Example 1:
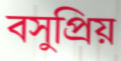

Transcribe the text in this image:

বসুপ্রিয়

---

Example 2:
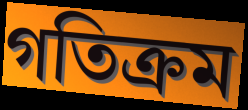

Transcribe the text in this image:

গতিক্রম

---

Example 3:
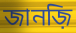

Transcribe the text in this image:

জানজ়ি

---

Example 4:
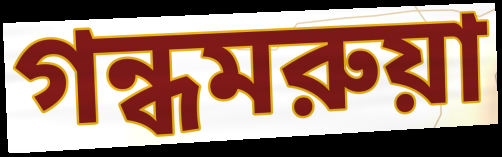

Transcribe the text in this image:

গন্ধমরুয়া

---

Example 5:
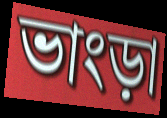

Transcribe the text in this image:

ভাংড়া